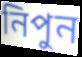
নিপুন